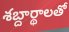
శబ్దార్థాలతో